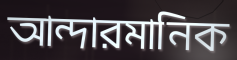
আন্দারমানিক